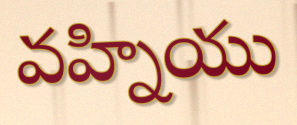
వహ్నియు